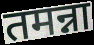
तमन्ना